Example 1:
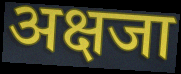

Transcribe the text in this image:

अक्षजा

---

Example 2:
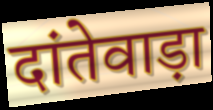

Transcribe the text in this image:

दांतेवाड़ा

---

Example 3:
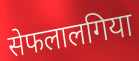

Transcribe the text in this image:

सेफलालगिया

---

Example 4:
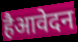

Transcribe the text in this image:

हैआवेदन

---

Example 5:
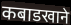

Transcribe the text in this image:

कबाडखाने